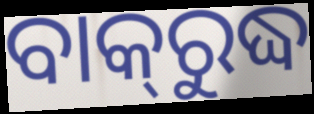
ବାକ୍‌ରୁଦ୍ଧ